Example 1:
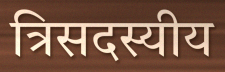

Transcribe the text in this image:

त्रिसदस्यीय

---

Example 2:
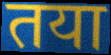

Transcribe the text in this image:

तया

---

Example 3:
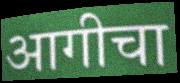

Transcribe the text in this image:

आगीचा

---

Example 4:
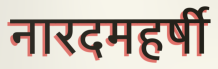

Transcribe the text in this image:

नारदमहर्षी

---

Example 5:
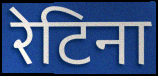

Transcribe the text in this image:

रेटिना